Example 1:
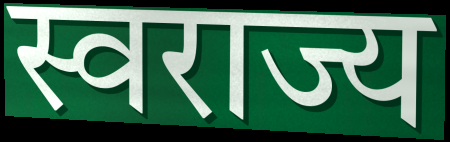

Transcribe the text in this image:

स्वराज्य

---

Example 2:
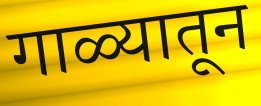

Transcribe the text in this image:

गाळ्यातून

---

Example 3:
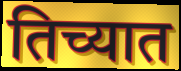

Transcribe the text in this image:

तिच्यात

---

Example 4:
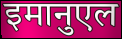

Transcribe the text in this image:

इमानुएल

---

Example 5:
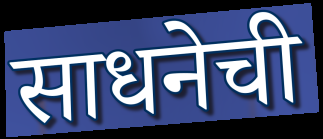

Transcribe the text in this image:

साधनेची